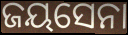
ଜୟସେନା